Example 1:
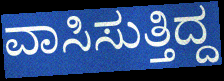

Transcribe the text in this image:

ವಾಸಿಸುತ್ತಿದ್ದ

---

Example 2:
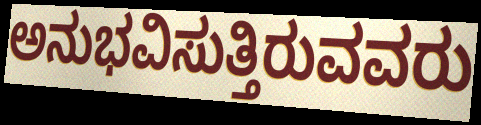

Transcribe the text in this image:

ಅನುಭವಿಸುತ್ತಿರುವವರು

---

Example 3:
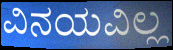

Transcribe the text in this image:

ವಿನಯವಿಲ್ಲ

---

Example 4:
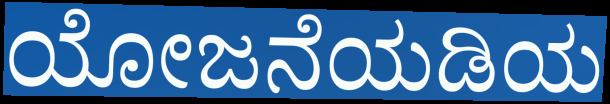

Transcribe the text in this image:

ಯೋಜನೆಯಡಿಯ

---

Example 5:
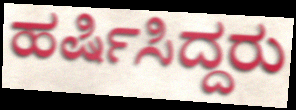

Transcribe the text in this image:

ಹರ್ಷಿಸಿದ್ದರು